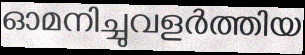
ഓമനിച്ചുവളർത്തിയ